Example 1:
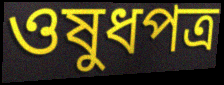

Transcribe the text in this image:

ওষুধপত্র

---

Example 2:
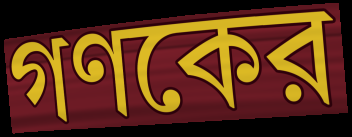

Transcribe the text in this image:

গণকের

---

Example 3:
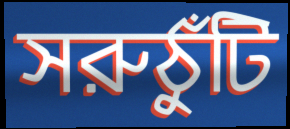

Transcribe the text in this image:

সরুঠুঁটি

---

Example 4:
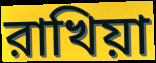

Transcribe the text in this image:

রাখিয়া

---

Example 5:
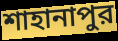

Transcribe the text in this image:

শাহানাপুর